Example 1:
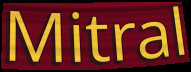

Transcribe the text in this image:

Mitral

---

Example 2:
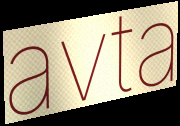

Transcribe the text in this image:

avta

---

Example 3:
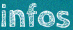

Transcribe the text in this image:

infos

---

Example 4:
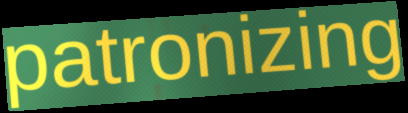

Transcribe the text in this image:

patronizing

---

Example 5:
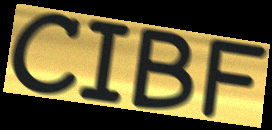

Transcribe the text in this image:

CIBF